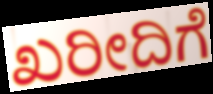
ಖರೀದಿಗೆ